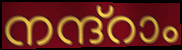
നന്ദ്റാം